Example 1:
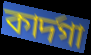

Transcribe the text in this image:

কাৰ্দগা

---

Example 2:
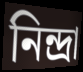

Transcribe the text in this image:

নিন্দ্ৰা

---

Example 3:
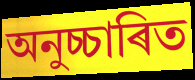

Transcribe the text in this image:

অনুচ্চাৰিত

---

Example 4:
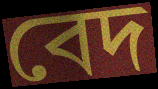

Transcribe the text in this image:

বেদ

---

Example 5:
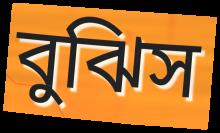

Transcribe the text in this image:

বুঝিস